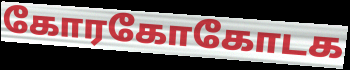
கோரகோகோடக